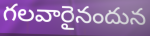
గలవారైనందున